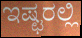
ಇಷ್ಟರಲ್ಲಿ